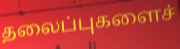
தலைப்புகளைச்